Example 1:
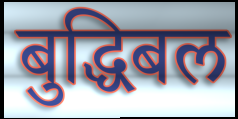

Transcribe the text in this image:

बुद्धिबल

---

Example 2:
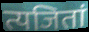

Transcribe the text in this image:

त्यजितां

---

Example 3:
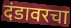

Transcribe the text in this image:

दंडावरचा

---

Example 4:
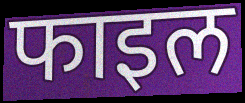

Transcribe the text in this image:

फाइल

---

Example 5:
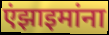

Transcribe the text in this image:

एंझाइमांना